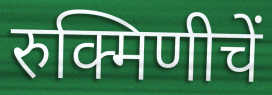
रुक्मिणीचें